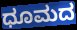
ಧೂಮದ